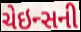
ચેઇન્સની